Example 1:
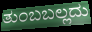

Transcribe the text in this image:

ತುಂಬಬಲ್ಲದು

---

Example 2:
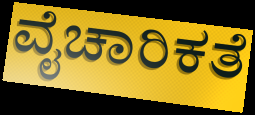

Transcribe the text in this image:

ವೈಚಾರಿಕತೆ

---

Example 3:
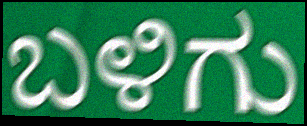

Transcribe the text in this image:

ಬಳಿಗು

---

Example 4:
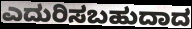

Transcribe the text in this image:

ಎದುರಿಸಬಹುದಾದ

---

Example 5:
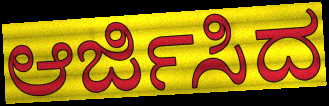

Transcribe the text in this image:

ಆರ್ಜಿಸಿದ